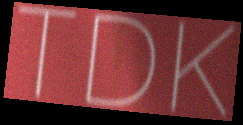
TDK